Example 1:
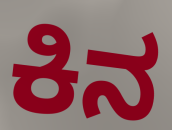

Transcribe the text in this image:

ಕಿನ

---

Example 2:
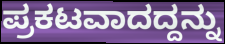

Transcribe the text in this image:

ಪ್ರಕಟವಾದದ್ದನ್ನು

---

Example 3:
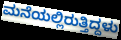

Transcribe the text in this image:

ಮನೆಯಲ್ಲಿರುತ್ತಿದ್ದಳು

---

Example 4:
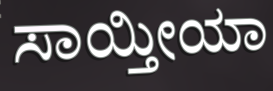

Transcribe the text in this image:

ಸಾಯ್ತೀಯಾ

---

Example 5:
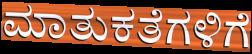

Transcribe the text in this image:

ಮಾತುಕತೆಗಳಿಗೆ